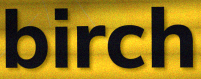
birch